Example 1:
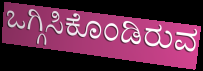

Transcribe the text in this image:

ಒಗ್ಗಿಸಿಕೊಂಡಿರುವ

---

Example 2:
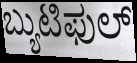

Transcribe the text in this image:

ಬ್ಯುಟಿಫುಲ್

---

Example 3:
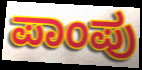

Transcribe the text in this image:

ಪಾಂಪು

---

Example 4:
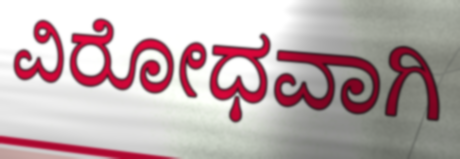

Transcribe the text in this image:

ವಿರೋಧವಾಗಿ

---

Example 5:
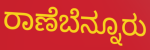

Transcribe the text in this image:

ರಾಣೆಬೆನ್ನೂರು